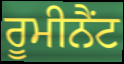
ਰੂਮੀਨੈਂਟ